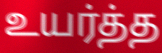
உயர்த்த